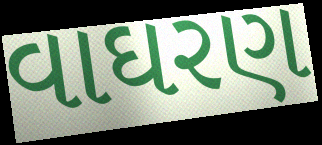
વાઘરણ